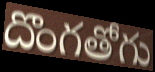
దొంగతోగు